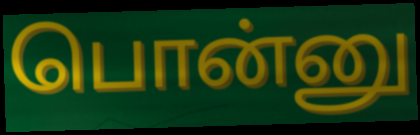
பொன்னு